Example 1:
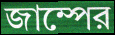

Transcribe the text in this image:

জাম্পের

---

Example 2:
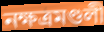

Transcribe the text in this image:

নক্ষত্রমণ্ডলী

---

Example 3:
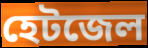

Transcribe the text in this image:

হেটজেল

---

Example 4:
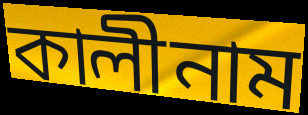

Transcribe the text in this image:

কালীনাম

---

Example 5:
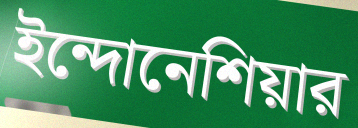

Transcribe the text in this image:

ইন্দোনেশিয়ার